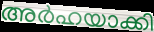
അർഹയാക്കി